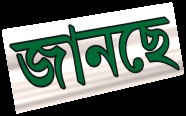
জানছে